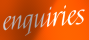
enquiries